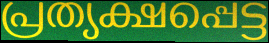
പ്രത്യക്ഷപ്പെട്ട